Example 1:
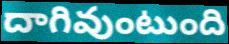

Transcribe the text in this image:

దాగివుంటుంది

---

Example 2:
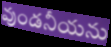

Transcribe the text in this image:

వుండనీయను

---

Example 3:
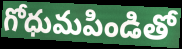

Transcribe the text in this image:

గోధుమపిండితో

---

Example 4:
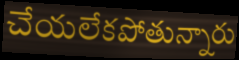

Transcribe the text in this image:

చేయలేకపోతున్నారు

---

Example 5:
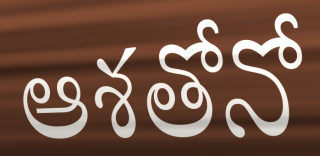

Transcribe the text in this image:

ఆశతోనో